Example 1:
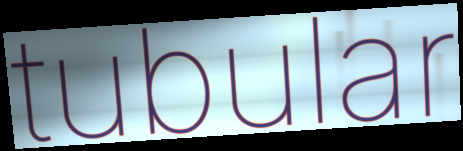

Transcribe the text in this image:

tubular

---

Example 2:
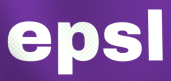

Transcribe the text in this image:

epsl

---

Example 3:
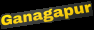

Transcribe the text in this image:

Ganagapur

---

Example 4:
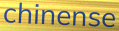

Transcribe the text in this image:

chinense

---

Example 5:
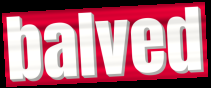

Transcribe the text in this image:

balved